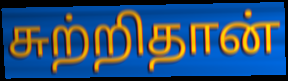
சுற்றிதான்